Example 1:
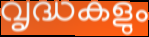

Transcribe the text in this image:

വൃദ്ധകളും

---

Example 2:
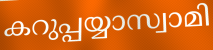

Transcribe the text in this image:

കറുപ്പയ്യാസ്വാമി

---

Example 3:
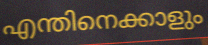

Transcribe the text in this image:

എന്തിനെക്കാളും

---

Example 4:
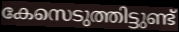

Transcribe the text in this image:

കേസെടുത്തിട്ടുണ്ട്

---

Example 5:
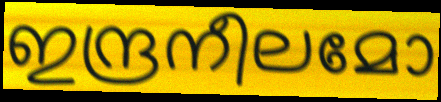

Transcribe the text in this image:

ഇന്ദ്രനീലമോ